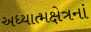
અધ્યાત્મક્ષેત્રનાં